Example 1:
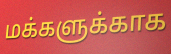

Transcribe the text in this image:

மக்களுக்காக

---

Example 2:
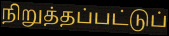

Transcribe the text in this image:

நிறுத்தப்பட்டுப்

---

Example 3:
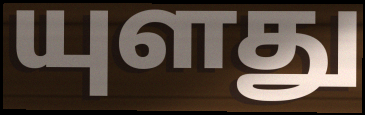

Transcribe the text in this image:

யுளது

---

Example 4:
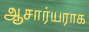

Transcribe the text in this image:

ஆசார்யராக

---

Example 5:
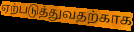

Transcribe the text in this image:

ஏற்படுத்துவதற்காக